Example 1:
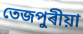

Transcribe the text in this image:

তেজপুৰীয়া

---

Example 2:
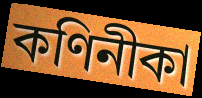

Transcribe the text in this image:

কণিনীকা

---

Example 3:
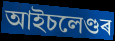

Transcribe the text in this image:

আইচলেণ্ডৰ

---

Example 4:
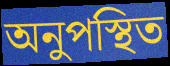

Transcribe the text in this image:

অনুপস্থিত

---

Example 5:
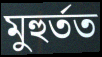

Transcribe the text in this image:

মুহুৰ্তত